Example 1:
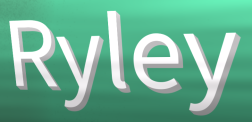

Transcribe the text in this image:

Ryley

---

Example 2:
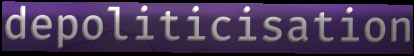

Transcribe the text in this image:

depoliticisation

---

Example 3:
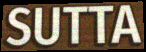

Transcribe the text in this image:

SUTTA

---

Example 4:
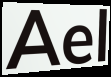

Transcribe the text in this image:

Ael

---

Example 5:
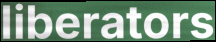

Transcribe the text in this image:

liberators